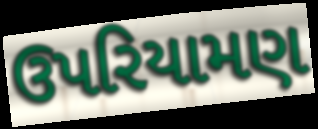
ઉપરિયામણ